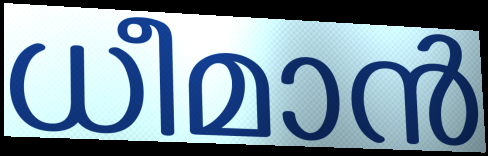
ധീമാൻ